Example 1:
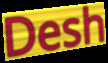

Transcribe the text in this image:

Desh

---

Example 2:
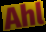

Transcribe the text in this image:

Ahl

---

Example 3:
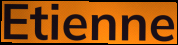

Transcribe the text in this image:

Etienne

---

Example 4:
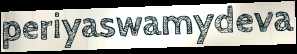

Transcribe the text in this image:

periyaswamydeva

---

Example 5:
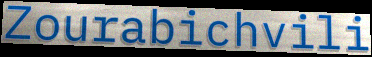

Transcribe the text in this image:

Zourabichvili